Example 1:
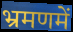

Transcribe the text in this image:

भ्रमणमें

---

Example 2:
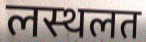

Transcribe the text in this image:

लस्थलत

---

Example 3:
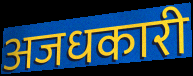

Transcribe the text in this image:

अजधकारी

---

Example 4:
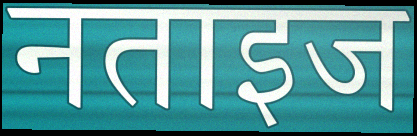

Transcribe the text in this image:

नताइज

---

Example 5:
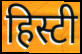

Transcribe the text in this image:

हिस्टी